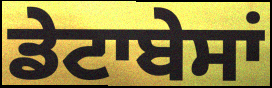
ਡੇਟਾਬੇਸਾਂ